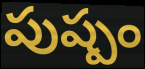
పుష్పం